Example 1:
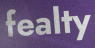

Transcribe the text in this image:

fealty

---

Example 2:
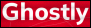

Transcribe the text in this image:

Ghostly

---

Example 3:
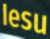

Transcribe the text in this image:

Iesu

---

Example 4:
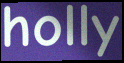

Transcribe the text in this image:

holly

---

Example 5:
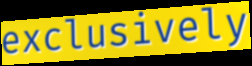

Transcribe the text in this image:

exclusively